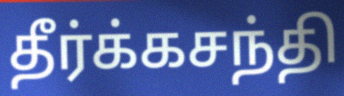
தீர்க்கசந்தி